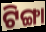
ଟିଙ୍ଗା